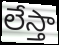
లేస్తా